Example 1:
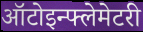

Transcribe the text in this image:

ऑटोइन्फ्लेमेटरी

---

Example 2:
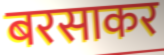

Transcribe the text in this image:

बरसाकर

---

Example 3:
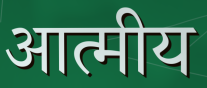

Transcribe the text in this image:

आत्मीय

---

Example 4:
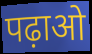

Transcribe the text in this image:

पढ़ाओ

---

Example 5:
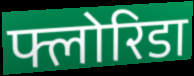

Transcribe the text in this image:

फ्लोरिडा